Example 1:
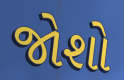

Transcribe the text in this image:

જોશો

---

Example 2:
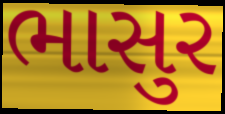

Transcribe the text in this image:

ભાસુર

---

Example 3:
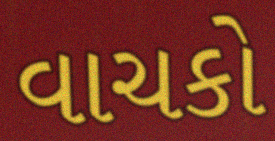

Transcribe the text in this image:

વાચકો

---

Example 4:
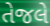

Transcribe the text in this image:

તેજલે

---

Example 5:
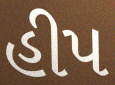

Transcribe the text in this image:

હીપ